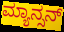
ಮ್ಯಾನ್ಸನ್